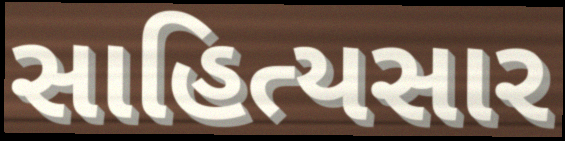
સાહિત્યસાર